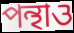
পন্থাও